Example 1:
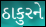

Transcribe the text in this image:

ઠાકુરને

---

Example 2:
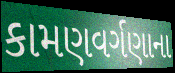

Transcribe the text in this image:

કામણવર્ગણાના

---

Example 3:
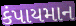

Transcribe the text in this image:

કંપાયમાન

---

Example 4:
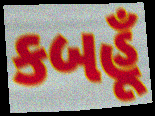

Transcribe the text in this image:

કબહૂઁ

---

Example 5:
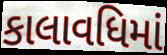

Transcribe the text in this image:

કાલાવધિમાં